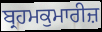
ਬ੍ਰਹਮਕੁਮਾਰੀਜ਼